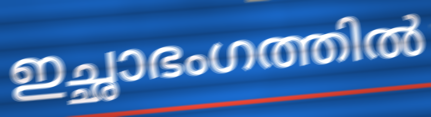
ഇച്ഛാഭംഗത്തിൽ